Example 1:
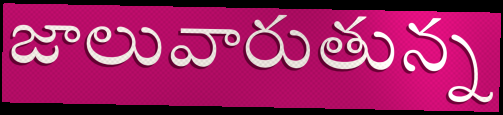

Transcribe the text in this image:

జాలువారుతున్న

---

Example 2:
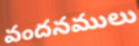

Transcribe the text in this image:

వందనములు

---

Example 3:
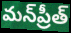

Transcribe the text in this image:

మన్‌ప్రీత్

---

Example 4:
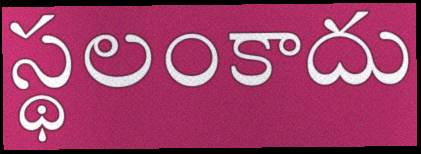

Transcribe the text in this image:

స్థలంకాదు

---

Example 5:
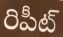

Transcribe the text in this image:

రిపీట్